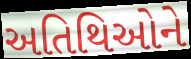
અતિથિઓને